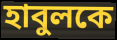
হাবুলকে